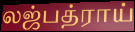
லஜ்பத்ராய்